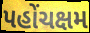
પહોંચક્ષમ